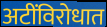
अटींविरोधात